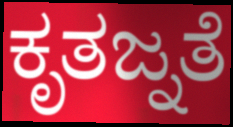
ಕೃತಜ್ನತೆ